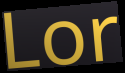
Lor